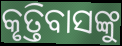
କୃତ୍ତିବାସଙ୍କୁ